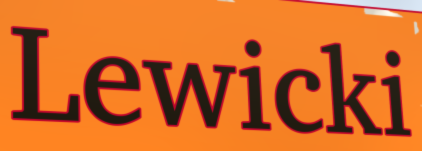
Lewicki